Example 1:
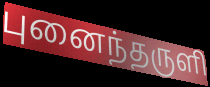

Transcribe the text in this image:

புனைந்தருளி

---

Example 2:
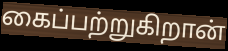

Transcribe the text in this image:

கைப்பற்றுகிறான்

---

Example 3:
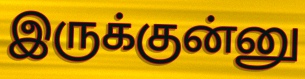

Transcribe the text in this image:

இருக்குன்னு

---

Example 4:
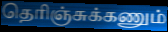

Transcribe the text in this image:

தெரிஞ்சுக்கணும்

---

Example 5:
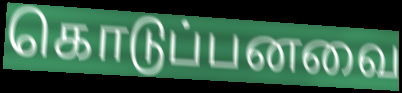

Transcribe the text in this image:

கொடுப்பனவை